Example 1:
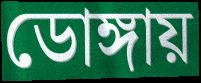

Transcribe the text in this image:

ডোঙ্গায়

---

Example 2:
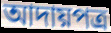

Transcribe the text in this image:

আদায়পত্র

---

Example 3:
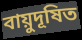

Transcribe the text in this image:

বায়ুদূষিত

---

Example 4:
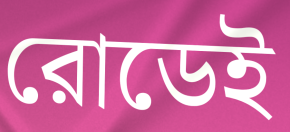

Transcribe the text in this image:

রোডেই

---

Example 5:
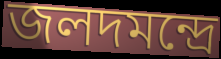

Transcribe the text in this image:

জলদমন্দ্রে